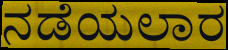
ನಡೆಯಲಾರ